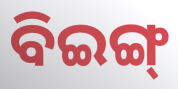
ବିଇଙ୍ଗ୍